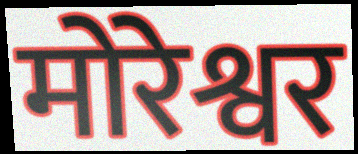
मोरेश्वर